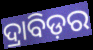
ଦ୍ରାବିଡ଼ର